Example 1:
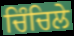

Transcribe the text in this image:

ਚਿੰਚਿਲੇ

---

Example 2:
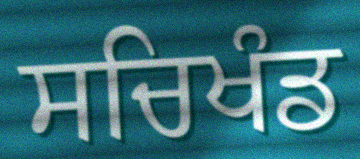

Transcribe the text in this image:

ਸਚਿਖੰਡ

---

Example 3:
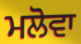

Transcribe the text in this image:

ਮਲੋਵਾ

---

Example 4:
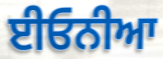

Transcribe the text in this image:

ਈਓਨੀਆ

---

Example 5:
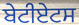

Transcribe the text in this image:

ਬੇਟੀਏਟਸ